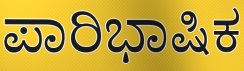
ಪಾರಿಭಾಷಿಕ